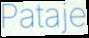
Pataje